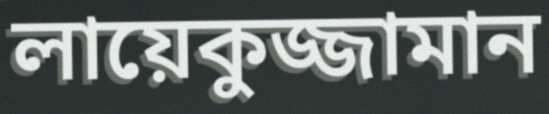
লায়েকুজ্জামান